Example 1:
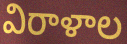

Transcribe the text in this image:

విరాళాల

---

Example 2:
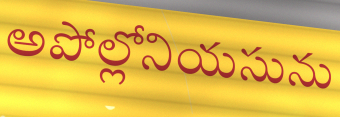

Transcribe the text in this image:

అపోల్లోనియసును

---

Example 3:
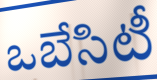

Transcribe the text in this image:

ఒబేసిటీ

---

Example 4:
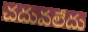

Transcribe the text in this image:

చదువలేదు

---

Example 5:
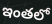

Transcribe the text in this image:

ఇంతలో